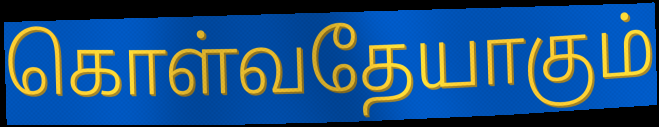
கொள்வதேயாகும்